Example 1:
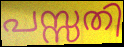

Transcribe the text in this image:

പസ്സതി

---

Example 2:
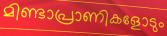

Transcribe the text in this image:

മിണ്ടാപ്രാണികളോടും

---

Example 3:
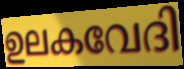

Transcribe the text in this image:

ഉലകവേദി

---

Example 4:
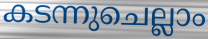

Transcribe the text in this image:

കടന്നുചെല്ലാം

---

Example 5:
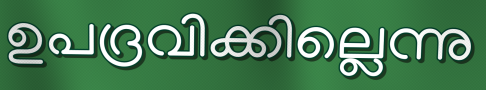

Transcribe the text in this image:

ഉപദ്രവിക്കില്ലെന്നു